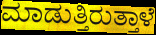
ಮಾಡುತ್ತಿರುತ್ತಾಳೆ